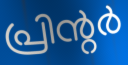
പ്രിന്റർ